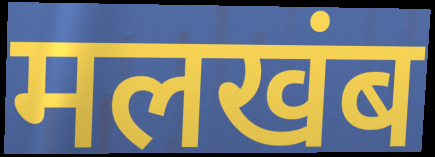
मलखंब